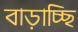
বাড়াচ্ছি